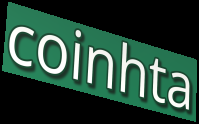
coinhta